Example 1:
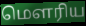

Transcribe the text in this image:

மெளரிய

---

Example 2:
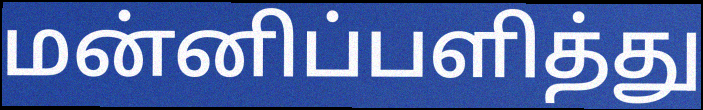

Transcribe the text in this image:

மன்னிப்பளித்து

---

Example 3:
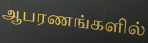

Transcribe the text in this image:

ஆபரணங்களில்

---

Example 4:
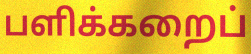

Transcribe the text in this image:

பளிக்கறைப்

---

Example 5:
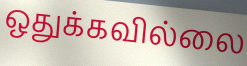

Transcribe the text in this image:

ஒதுக்கவில்லை